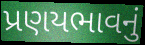
પ્રણયભાવનું